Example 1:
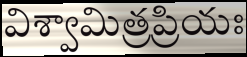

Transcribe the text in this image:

విశ్వామిత్రప్రియః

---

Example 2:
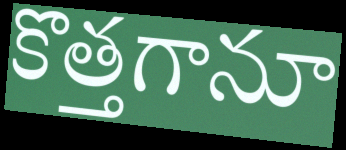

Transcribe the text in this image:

కొత్తగానూ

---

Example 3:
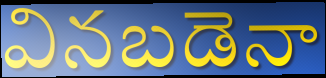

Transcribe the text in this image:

వినబడెనా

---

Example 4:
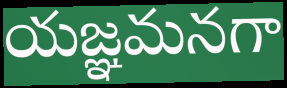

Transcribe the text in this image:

యజ్ఞమనగా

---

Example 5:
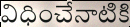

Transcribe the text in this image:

విధించేనాటికి